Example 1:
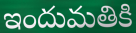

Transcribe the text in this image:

ఇందుమతికి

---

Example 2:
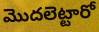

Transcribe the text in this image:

మొదలెట్టారో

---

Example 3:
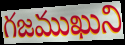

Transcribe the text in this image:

గజముఖుని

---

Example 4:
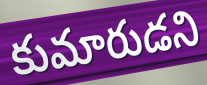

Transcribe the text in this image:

కుమారుడని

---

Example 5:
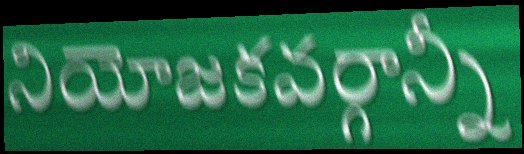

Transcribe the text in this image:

నియోజకవర్గాన్నీ